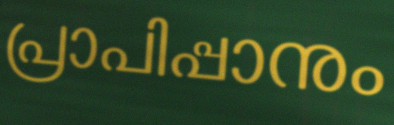
പ്രാപിപ്പാനും